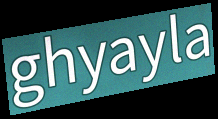
ghyayla